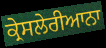
ਕ੍ਰੇਸਲੇਰੀਆਨਾ